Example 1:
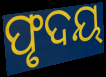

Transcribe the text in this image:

ଫୃଦୟ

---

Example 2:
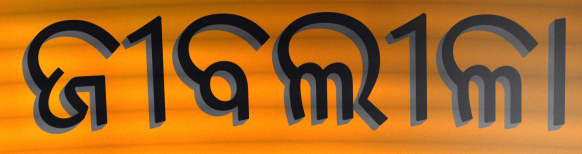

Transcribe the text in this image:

ଜୀବଲୀଳା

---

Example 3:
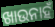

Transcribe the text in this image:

ଖାଉନାହଁ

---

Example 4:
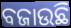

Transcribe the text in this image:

ବଜାଉଛି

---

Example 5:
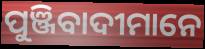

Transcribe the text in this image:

ପୁଞ୍ଜିବାଦୀମାନେ